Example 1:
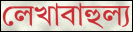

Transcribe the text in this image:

লেখাবাহুল্য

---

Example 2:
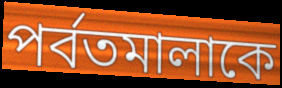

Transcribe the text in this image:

পর্বতমালাকে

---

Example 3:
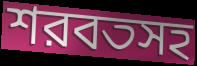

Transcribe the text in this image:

শরবতসহ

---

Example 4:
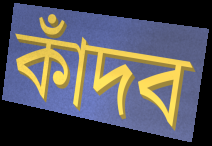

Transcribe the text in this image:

কাঁদব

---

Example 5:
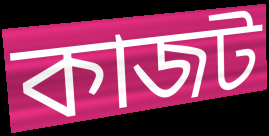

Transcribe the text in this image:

কাজট